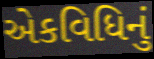
એકવિધિનું